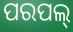
ପରପଲ୍